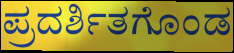
ಪ್ರದರ್ಶಿತಗೊಂಡ